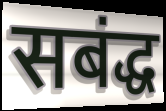
सबंद्ध